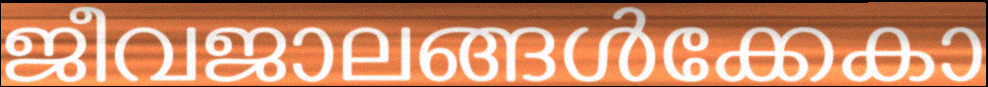
ജീവജാലങ്ങൾക്കേകാ